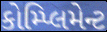
કોમ્પ્લિમેન્ટ